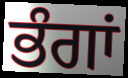
ਭੰਗਾਂ